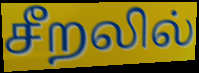
சீறலில்